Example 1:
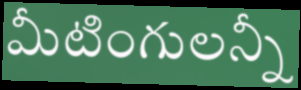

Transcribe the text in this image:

మీటింగులన్నీ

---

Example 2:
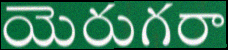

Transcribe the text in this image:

యెరుగరా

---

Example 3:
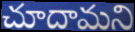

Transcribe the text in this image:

చూదామని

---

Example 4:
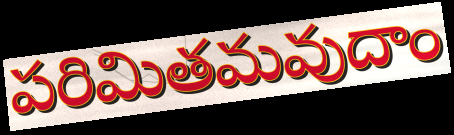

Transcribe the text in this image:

పరిమితమవుదాం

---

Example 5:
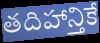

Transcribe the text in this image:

తదిహాన్తికే